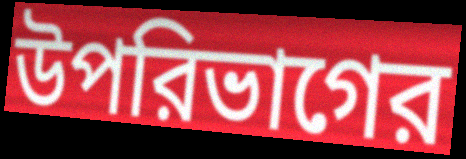
উপরিভাগের